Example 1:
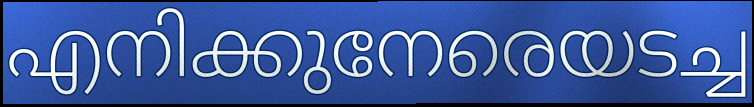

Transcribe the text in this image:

എനിക്കുനേരെയടച്ച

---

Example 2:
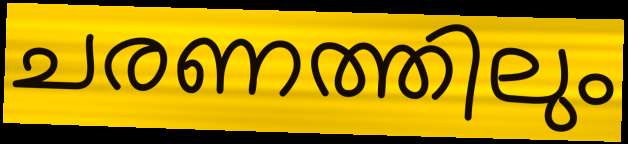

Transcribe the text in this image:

ചരണത്തിലും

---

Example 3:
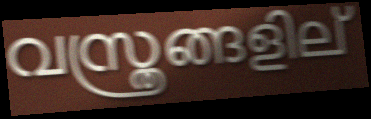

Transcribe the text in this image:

വസ്ത്രങ്ങളില്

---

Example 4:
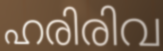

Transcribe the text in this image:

ഹരിരിവ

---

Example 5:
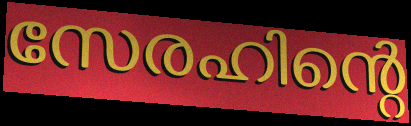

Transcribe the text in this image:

സേരഹിന്റെ